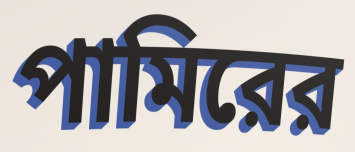
পামিরের